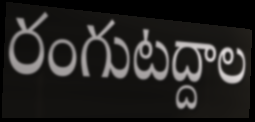
రంగుటద్దాల